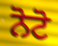
ਨੋਟੋ